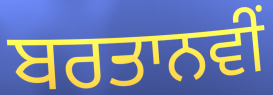
ਬਰਤਾਨਵੀਂ